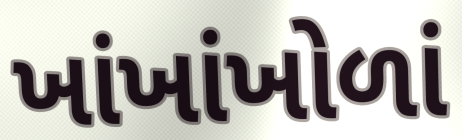
ખાંખાંખોળાં